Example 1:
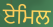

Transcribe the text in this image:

ਏਮਿਲ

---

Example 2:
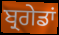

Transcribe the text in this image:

ਬ੍ਰਗੇਡਾਂ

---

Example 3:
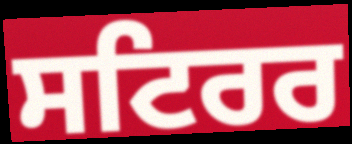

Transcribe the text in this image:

ਸਟਿਰਰ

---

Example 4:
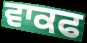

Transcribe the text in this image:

ਵਾਕਫ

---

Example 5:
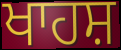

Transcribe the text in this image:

ਖਾਹਸ਼